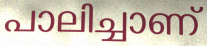
പാലിച്ചാണ്